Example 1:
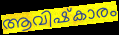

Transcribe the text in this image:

ആവിഷ്‌കാരം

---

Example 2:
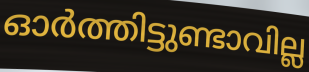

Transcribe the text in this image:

ഓർത്തിട്ടുണ്ടാവില്ല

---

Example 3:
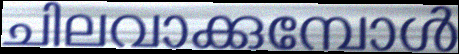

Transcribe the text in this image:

ചിലവാക്കുമ്പോൾ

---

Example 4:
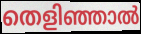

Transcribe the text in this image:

തെളിഞ്ഞാൽ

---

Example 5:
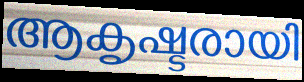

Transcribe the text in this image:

ആകൃഷ്ടരായി